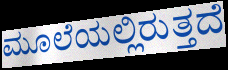
ಮೂಲೆಯಲ್ಲಿರುತ್ತದೆ